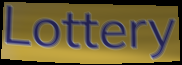
Lottery